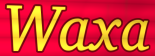
Waxa